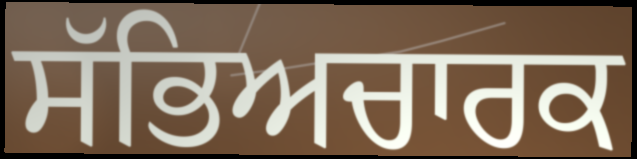
ਸੱਭਿਅਚਾਰਕ